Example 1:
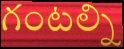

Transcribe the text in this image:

గంటల్ని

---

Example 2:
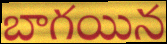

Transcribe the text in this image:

బాగయిన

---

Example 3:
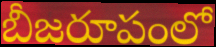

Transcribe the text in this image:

బీజరూపంలో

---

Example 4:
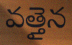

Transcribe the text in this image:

వత్తైన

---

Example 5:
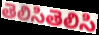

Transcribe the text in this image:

తెలిసితెలిసి